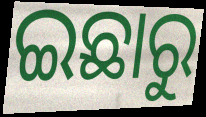
ଇଛାରୁ